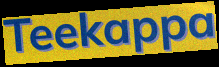
Teekappa